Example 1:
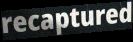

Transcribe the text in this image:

recaptured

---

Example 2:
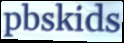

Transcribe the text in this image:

pbskids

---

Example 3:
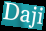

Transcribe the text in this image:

Daji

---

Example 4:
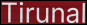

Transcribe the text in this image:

Tirunal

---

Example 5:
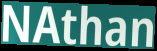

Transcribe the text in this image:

NAthan